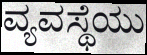
ವ್ಯವಸ್ಥೆಯು